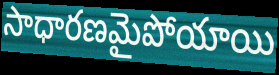
సాధారణమైపోయాయి